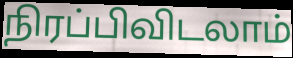
நிரப்பிவிடலாம்